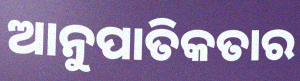
ଆନୁପାତିକତାର